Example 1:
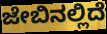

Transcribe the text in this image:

ಜೇಬಿನಲ್ಲಿದೆ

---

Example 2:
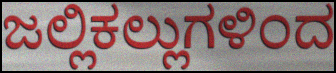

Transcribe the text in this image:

ಜಲ್ಲಿಕಲ್ಲುಗಳಿಂದ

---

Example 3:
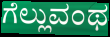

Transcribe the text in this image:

ಗೆಲ್ಲುವಂಥ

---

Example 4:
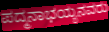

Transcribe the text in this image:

ಪದ್ಮನಾಭಯ್ಯನವರು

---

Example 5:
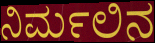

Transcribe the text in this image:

ನಿರ್ಮಲಿನ